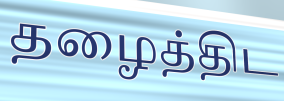
தழைத்திட